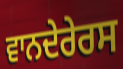
ਵਾਨਦੇਰੇਰਸ